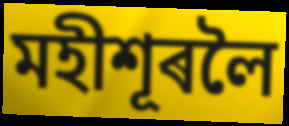
মহীশূৰলৈ